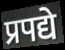
प्रपद्ये